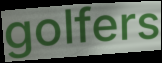
golfers